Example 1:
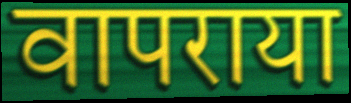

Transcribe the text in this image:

वापराया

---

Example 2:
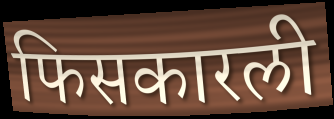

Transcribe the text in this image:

फिसकारली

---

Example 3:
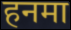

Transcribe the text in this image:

हनमा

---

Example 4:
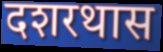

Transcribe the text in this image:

दशरथास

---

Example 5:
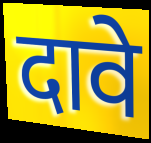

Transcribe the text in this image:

दावे